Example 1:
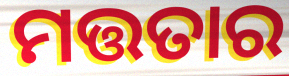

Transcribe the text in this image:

ମତ୍ତତାର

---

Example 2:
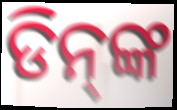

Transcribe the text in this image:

ଡିନ୍‌ଙ୍କ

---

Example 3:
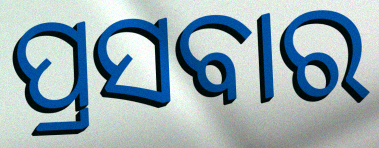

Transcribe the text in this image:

ପ୍ରସବାର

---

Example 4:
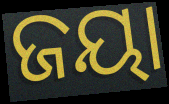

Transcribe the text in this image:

ଜୟା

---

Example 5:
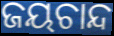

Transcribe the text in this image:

ଜୟଚାନ୍ଦ